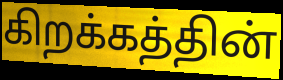
கிறக்கத்தின்